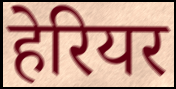
हेरियर